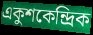
একুশকেন্দ্রিক